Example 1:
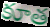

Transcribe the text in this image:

కూత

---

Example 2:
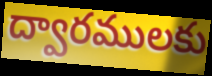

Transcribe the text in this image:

ద్వారములకు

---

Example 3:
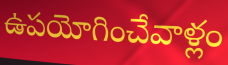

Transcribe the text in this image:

ఉపయోగించేవాళ్లం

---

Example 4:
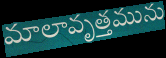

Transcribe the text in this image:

మాలావృత్తమును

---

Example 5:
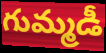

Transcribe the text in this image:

గుమ్మడీ